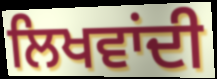
ਲਿਖਵਾਂਦੀ